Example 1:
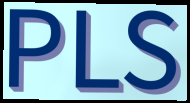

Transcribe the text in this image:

PLS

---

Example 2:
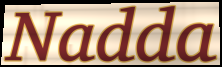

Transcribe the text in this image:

Nadda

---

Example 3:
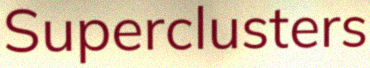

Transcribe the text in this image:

Superclusters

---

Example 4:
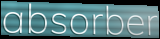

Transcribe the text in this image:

absorber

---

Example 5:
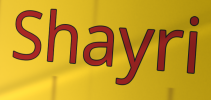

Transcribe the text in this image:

Shayri